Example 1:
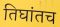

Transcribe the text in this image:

तिघांतच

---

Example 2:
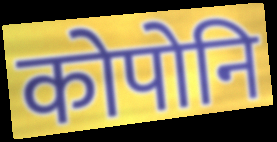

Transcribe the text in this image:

कोपोनि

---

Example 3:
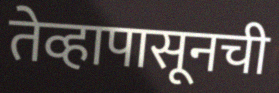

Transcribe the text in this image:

तेव्हापासूनची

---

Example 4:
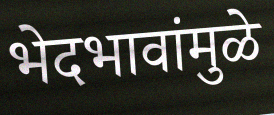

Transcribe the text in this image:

भेदभावांमुळे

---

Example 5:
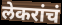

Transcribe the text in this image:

लेकरांचं